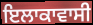
ਇਲਾਕਾਵਾਸੀ